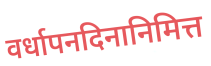
वर्धापनदिनानिमित्त